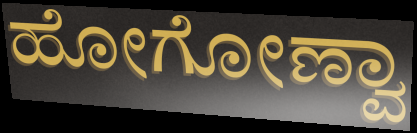
ಹೋಗೋಣ್ವಾ